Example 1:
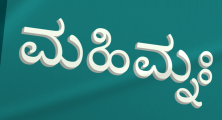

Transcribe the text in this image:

ಮಹಿಮ್ನಃ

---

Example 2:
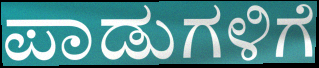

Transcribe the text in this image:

ಪಾಡುಗಳಿಗೆ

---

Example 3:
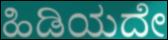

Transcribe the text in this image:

ಹಿಡಿಯದೇ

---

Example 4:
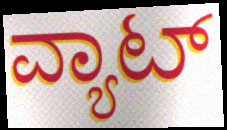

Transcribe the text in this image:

ವ್ಯಾಟ್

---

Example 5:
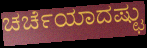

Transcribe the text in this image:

ಚರ್ಚೆಯಾದಷ್ಟು